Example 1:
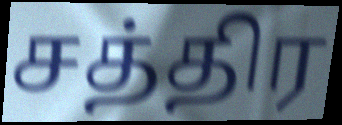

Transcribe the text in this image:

சத்திர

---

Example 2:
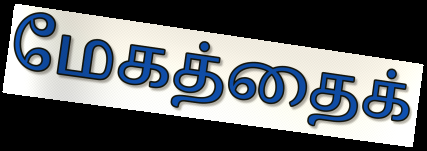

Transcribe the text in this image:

மேகத்தைக்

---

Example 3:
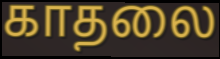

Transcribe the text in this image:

காதலை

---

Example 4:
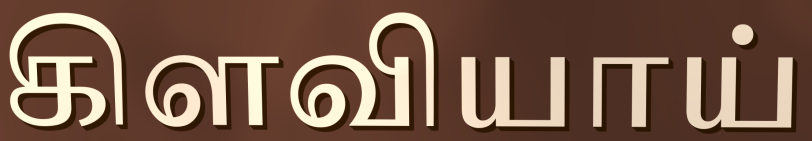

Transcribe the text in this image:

கிளவியாய்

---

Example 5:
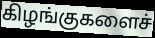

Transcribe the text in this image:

கிழங்குகளைச்